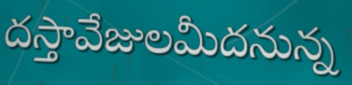
దస్తావేజులమీదనున్న